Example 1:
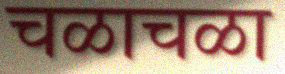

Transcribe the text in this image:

चळाचळा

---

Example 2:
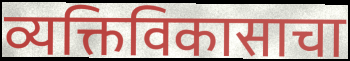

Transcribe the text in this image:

व्यक्तिविकासाचा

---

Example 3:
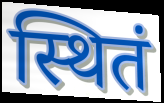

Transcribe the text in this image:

स्थितं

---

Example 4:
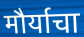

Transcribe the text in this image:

मौर्याचा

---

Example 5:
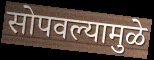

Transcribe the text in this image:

सोपवल्यामुळे